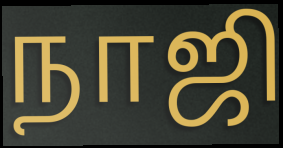
நாஜி